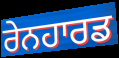
ਰੇਨਹਾਰਡ